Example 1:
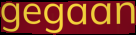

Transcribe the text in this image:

gegaan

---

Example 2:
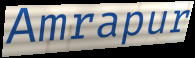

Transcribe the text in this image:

Amrapur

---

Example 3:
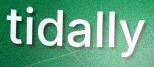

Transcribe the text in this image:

tidally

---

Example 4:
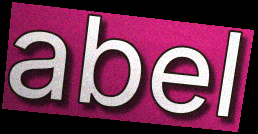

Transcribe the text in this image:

abel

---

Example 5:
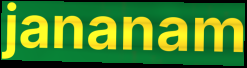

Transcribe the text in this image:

jananam